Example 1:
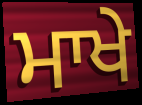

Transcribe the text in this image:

ਮਾਖੇ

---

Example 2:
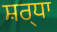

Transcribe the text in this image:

ਸ਼ਰ੍ਧਾ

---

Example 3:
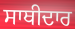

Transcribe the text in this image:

ਸਾਥੀਦਾਰ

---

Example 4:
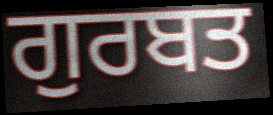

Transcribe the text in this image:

ਗੁਰਬਤ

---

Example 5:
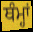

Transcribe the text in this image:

ਥੰਮ੍ਹਾਂ